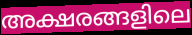
അക്ഷരങ്ങളിലെ